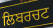
ਲਿਬਰਚਟ